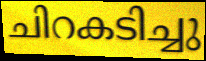
ചിറകടിച്ചു